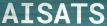
AISATS